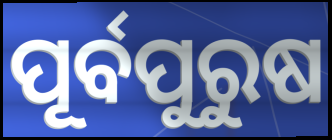
ପୂର୍ବପୁରୁଷ